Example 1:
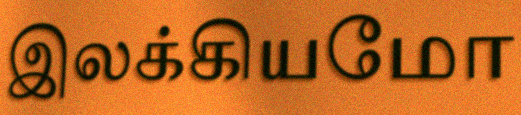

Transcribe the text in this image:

இலக்கியமோ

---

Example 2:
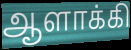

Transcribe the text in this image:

ஆளாக்கி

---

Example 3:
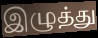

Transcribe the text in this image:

இழுத்து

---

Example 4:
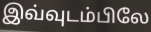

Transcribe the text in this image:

இவ்வுடம்பிலே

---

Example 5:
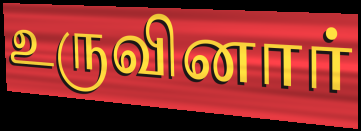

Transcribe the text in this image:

உருவினார்